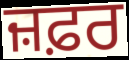
ਜ਼ਫ਼ਰ